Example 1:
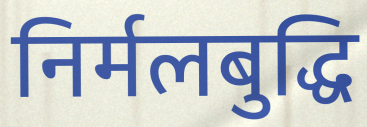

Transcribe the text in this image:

निर्मलबुद्धि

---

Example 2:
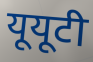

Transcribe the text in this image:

यूयूटी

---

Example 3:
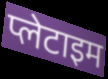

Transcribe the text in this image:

प्लेटाइम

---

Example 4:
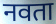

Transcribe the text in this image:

नवता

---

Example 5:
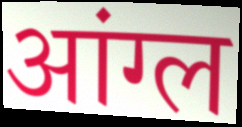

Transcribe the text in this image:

आंग्ल